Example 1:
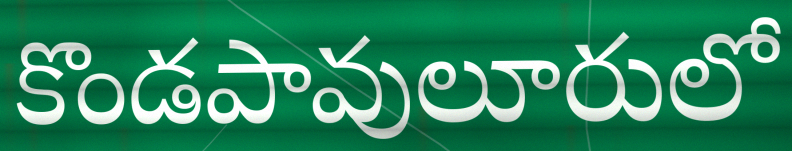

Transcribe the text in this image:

కొండపావులూరులో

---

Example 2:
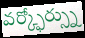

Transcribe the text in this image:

వర్క్ఫోర్స్ను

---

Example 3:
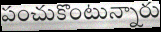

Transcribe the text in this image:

పంచుకొంటున్నారు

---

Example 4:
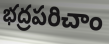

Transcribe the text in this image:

భద్రపరిచాం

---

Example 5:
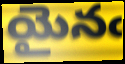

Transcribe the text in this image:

యైనఁ